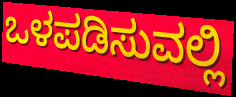
ಒಳಪಡಿಸುವಲ್ಲಿ